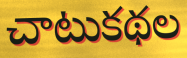
చాటుకథల